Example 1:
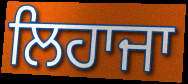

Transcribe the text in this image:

ਲਿਹਾਜਾ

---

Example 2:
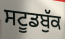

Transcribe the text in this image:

ਸਟੂਡਬੁੱਕ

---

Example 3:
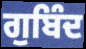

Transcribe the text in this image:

ਗੁਬਿੰਦ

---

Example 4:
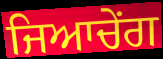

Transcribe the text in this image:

ਜਿਆਚੇਂਗ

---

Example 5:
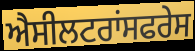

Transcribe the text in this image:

ਐਸੀਲਟਰਾਂਸਫਰੇਸ